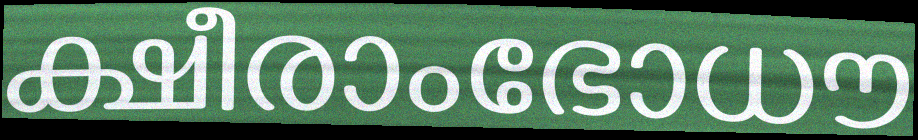
ക്ഷീരാംഭോധൗ